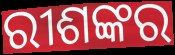
ରୀଶଙ୍କର